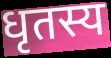
धृतस्य